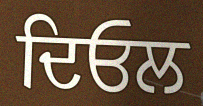
ਦਿਓਲ